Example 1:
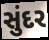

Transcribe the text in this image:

સુંદર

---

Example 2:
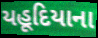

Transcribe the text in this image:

યહૂદિયાના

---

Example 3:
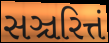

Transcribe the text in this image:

સઞ્ચરિત્તં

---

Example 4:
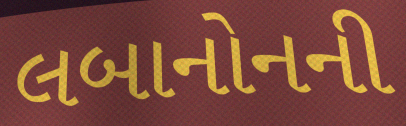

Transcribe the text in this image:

લબાનોનની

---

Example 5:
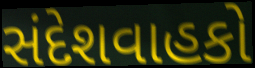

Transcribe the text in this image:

સંદેશવાહકો